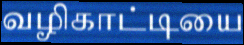
வழிகாட்டியை